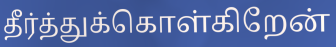
தீர்த்துக்கொள்கிறேன்